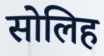
सोलिह